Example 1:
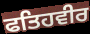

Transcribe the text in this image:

ਫਤਿਹਵੀਰ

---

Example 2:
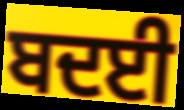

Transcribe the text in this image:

ਬਦਈ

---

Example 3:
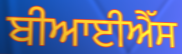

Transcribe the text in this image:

ਬੀਆਈਐੱਸ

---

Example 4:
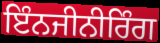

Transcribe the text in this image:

ਇੰਨਜੀਨੀਰਿੰਗ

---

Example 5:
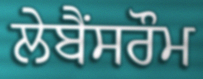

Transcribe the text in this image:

ਲੇਬੈਂਸਰੌਮ